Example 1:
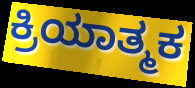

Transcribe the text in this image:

ಕ್ರಿಯಾತ್ಮಕ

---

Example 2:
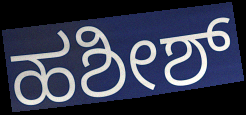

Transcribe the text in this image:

ಹಶೀಶ್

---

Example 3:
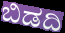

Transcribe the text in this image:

ಬಿಡದಿ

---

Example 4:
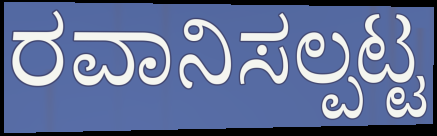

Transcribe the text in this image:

ರವಾನಿಸಲ್ಪಟ್ಟ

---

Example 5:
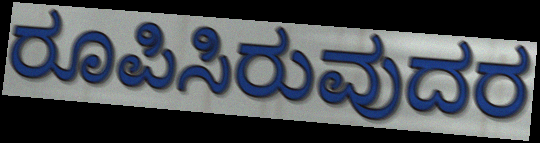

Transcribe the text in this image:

ರೂಪಿಸಿರುವುದರ